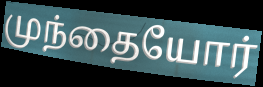
முந்தையோர்